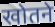
खोतने